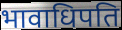
भावाधिपति